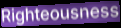
Righteousness